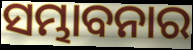
ସମ୍ଭାବନାର